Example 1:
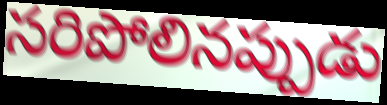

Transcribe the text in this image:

సరిపోలినప్పుడు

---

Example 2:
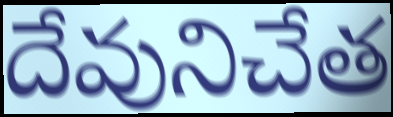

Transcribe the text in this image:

దేవునిచేత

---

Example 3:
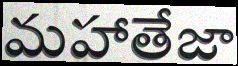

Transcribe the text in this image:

మహాతేజా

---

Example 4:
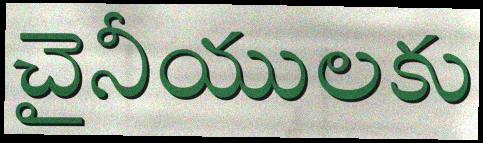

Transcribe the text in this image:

చైనీయులకు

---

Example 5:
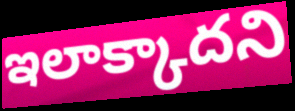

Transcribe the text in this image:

ఇలాక్కాదని